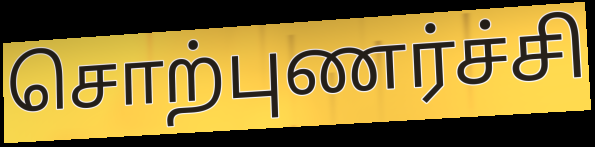
சொற்புணர்ச்சி